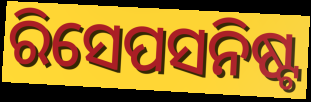
ରିସେପସନିଷ୍ଟ